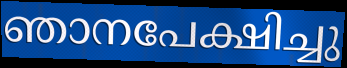
ഞാനപേക്ഷിച്ചു